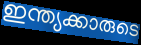
ഇന്ത്യക്കാരുടെ